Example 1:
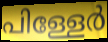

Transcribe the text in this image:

പിള്ളേർ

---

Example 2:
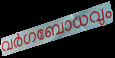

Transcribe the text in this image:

വർഗബോധവും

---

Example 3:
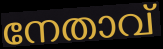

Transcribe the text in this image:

നേതാവ്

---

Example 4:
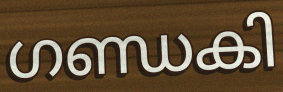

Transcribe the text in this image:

ഗണ്ഡകി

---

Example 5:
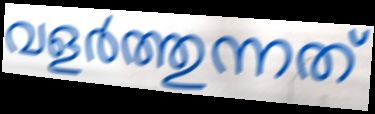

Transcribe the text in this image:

വളർത്തുന്നത്